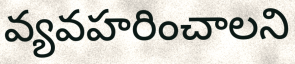
వ్యవహరించాలని